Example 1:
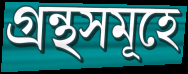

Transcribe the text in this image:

গ্রন্থসমূহে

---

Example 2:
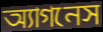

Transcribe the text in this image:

অ্যাগনেস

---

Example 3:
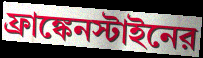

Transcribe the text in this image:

ফ্রাঙ্কেনস্টাইনের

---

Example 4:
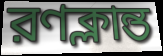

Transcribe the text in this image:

রণক্লান্ত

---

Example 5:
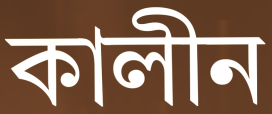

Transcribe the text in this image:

কালীন